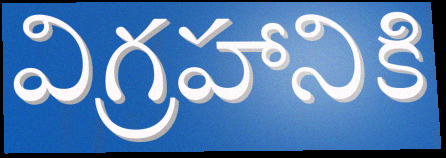
విగ్రహానికి